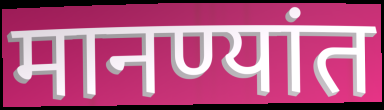
मानण्यांत